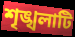
শৃঙ্খলাটি